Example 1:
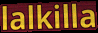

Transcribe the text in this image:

lalkilla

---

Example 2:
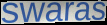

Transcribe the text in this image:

swaras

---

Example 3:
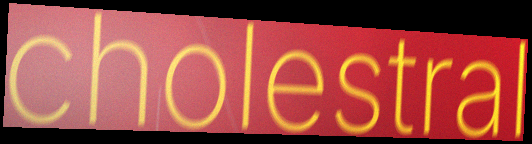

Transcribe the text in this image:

cholestral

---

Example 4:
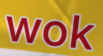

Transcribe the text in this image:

wok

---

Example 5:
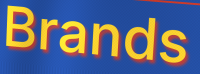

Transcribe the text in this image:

Brands